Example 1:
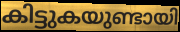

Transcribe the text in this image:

കിട്ടുകയുണ്ടായി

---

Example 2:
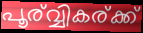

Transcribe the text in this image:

പൂര്വ്വികര്ക്ക്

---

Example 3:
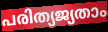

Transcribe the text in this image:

പരിത്യജ്യതാം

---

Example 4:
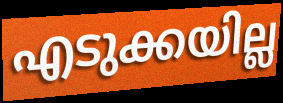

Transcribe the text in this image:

എടുക്കയില്ല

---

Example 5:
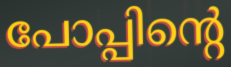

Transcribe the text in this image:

പോപ്പിന്റെ